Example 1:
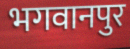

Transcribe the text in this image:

भगवानपुर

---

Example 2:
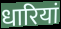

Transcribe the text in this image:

धारियां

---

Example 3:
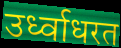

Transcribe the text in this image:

उर्ध्वाधरत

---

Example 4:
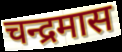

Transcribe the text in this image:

चन्द्रमास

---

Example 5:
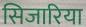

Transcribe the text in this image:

सिजारिया